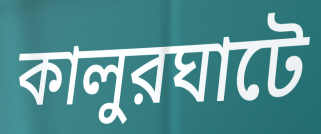
কালুরঘাটে